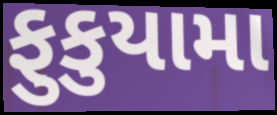
ફુકુયામા